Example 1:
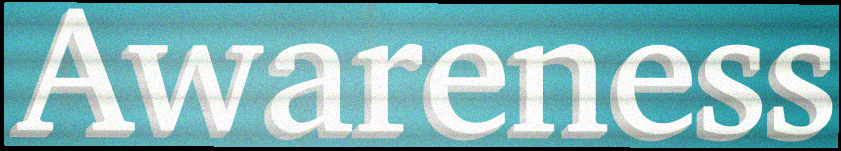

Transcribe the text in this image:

Awareness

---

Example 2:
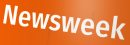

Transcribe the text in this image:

Newsweek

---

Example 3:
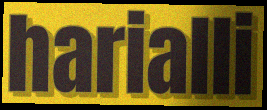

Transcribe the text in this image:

harialli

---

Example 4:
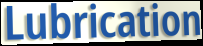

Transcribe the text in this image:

Lubrication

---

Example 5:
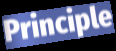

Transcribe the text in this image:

Principle